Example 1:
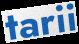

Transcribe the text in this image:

tarii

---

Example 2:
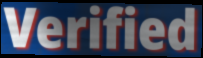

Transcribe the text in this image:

Verified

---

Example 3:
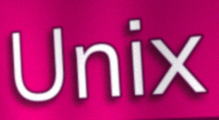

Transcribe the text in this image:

Unix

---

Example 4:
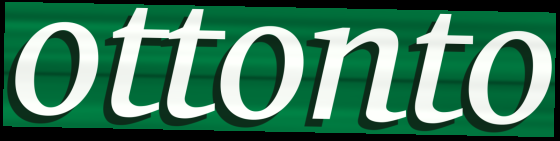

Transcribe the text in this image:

ottonto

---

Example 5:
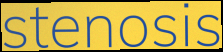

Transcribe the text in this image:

stenosis